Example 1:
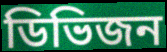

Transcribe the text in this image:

ডিভিজন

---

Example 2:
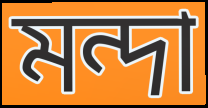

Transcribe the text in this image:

মন্দা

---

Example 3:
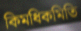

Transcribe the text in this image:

কিমধিকমিতি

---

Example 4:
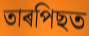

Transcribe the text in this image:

তাৰপিছত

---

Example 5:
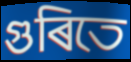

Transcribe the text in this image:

গুৰিতে